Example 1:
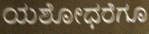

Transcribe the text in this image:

ಯಶೋಧರೆಗೂ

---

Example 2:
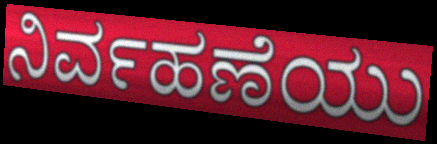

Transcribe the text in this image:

ನಿರ್ವಹಣೆಯು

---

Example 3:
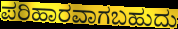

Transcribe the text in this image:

ಪರಿಹಾರವಾಗಬಹುದು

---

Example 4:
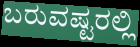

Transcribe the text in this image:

ಬರುವಷ್ಟರಲ್ಲಿ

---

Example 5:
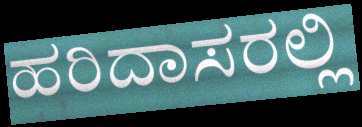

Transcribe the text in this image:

ಹರಿದಾಸರಲ್ಲಿ